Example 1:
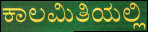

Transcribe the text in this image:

ಕಾಲಮಿತಿಯಲ್ಲಿ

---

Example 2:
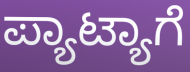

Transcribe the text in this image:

ಪ್ಯಾಟ್ಯಾಗೆ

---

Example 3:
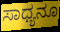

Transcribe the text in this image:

ಸಾಧ್ಯನೂ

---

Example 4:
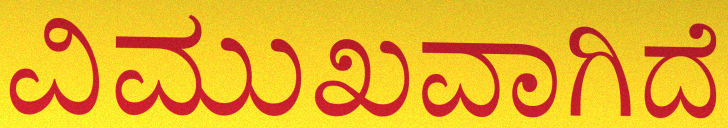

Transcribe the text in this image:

ವಿಮುಖವಾಗಿದೆ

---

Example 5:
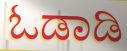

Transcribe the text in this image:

ಓಡಾಡಿ